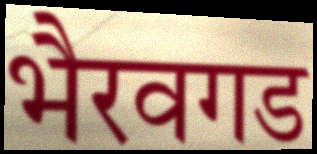
भैरवगड